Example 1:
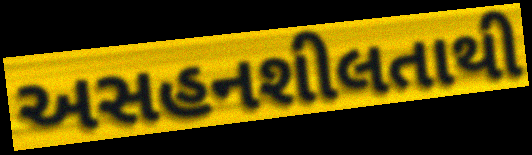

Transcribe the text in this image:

અસહનશીલતાથી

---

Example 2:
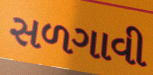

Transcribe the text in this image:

સળગાવી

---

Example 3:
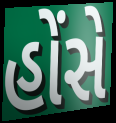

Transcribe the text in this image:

હોંસે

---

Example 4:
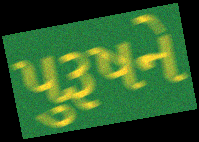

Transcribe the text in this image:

પુરૂષને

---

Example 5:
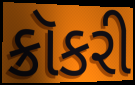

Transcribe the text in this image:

ક્રૉકરી